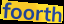
foorth